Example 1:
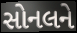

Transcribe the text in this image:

સોનલને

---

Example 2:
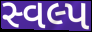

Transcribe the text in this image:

સ્વલ્પ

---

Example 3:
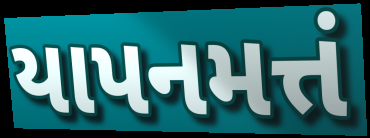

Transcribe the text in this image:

યાપનમત્તં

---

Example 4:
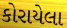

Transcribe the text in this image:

કોરાયેલા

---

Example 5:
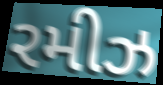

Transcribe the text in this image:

રમીઝ